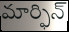
మార్ఫిన్